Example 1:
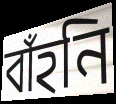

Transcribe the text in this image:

বাঁহনি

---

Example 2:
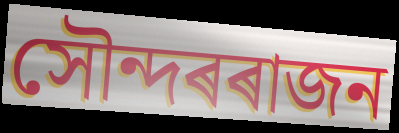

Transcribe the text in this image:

সৌন্দৰৰাজন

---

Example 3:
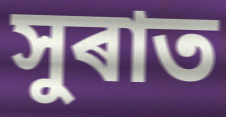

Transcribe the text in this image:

সুৰাত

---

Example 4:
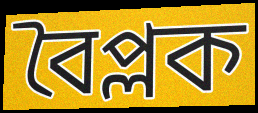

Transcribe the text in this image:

বৈপ্লক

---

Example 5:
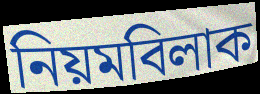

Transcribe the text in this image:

নিয়মবিলাক